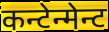
कन्टेन्मेन्ट